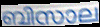
ബിസാല